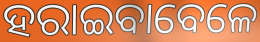
ହରାଇବାବେଳେ